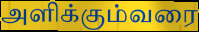
அளிக்கும்வரை